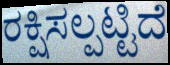
ರಕ್ಷಿಸಲ್ಪಟ್ಟಿದೆ